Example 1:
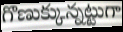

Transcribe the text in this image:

గొణుక్కున్నట్టుగా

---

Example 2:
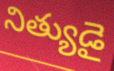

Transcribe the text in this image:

నిత్యుడై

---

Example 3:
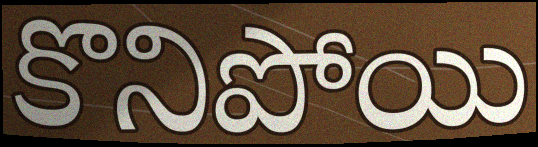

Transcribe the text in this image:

కొనిపోయి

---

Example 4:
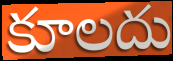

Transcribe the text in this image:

కూలదు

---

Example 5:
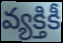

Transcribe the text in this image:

వ్యక్తికీ